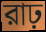
রাঢ়